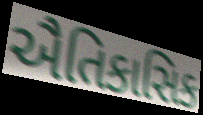
ઐતિકાસિક